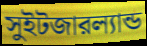
সুইটজারল্যান্ড